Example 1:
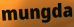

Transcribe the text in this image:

mungda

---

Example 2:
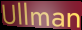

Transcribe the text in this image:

Ullman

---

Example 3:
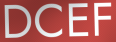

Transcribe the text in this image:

DCEF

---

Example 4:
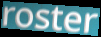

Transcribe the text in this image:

roster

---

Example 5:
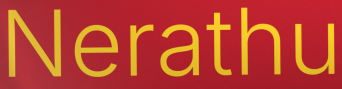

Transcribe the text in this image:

Nerathu